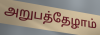
அறுபத்தேழாம்